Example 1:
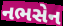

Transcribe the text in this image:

નભસેન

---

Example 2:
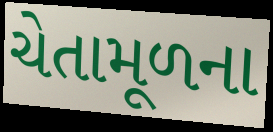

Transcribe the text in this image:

ચેતામૂળના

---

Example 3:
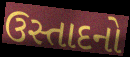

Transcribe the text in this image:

ઉસ્તાદનો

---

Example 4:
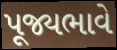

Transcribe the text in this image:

પૂજ્યભાવે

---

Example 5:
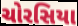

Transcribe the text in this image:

ચોરસિયા